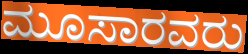
ಮೂಸಾರವರು